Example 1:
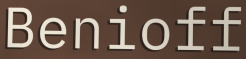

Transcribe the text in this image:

Benioff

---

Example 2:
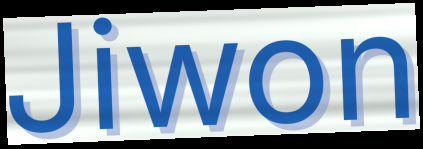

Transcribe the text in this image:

Jiwon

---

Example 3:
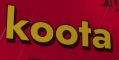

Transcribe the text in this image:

koota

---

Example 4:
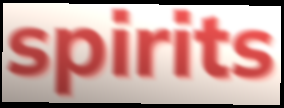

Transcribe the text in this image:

spirits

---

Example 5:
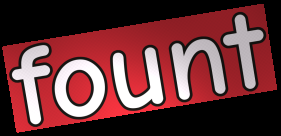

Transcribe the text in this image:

fount